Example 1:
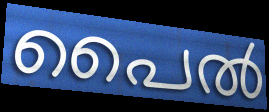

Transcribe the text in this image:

പൈൽ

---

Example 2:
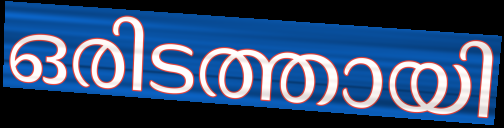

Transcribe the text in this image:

ഒരിടത്തായി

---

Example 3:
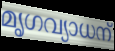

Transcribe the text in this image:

മൃഗവ്യാധന്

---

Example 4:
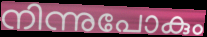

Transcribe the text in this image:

നിന്നുപോകും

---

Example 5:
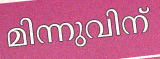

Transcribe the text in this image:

മിന്നുവിന്